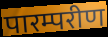
पारम्परीण